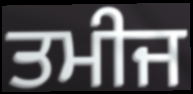
ਤਮੀਜ